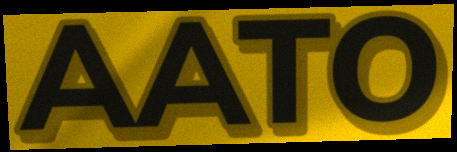
AATO